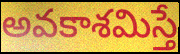
అవకాశమిస్తే